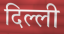
दिल्ली